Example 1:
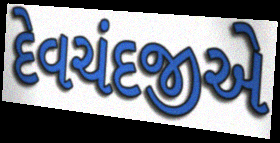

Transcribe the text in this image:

દેવચંદજીએ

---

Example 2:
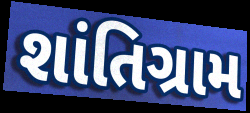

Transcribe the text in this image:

શાંતિગ્રામ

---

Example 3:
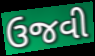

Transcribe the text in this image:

ઉજવી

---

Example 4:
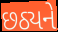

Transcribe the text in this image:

છઠ્યને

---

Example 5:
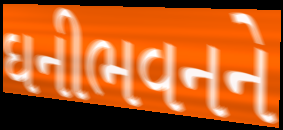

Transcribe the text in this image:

ઘનીભવનને